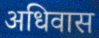
अधिवास